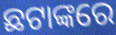
ଛଟାଙ୍କରେ